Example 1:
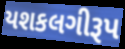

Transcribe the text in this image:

યશકલગીરૂપ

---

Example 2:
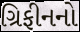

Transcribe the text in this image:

ગ્રિફીનનો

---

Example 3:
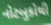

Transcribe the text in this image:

નોટબુકોથી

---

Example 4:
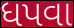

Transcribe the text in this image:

ધપવા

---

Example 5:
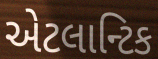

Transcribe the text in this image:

એટલાન્ટિક